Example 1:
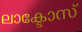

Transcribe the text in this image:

ലാക്ടോസ്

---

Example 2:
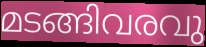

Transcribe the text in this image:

മടങ്ങിവരവു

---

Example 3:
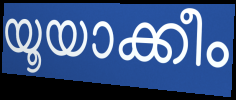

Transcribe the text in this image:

യൂയാക്കീം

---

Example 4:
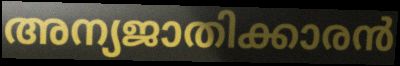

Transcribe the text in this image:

അന്യജാതിക്കാരൻ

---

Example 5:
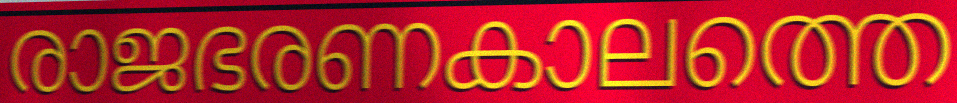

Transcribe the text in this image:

രാജഭരണകാലത്തെ